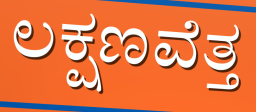
ಲಕ್ಷಣವೆತ್ತ